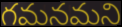
గమనమని